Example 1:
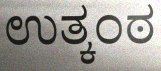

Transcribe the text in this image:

ಉತ್ಕಂಠ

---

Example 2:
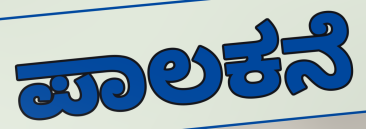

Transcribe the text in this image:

ಪಾಲಕನೆ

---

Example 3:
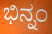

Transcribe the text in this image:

ಭಿನ್ನಂ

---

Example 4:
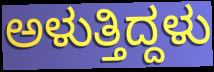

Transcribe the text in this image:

ಅಳುತ್ತಿದ್ದಳು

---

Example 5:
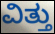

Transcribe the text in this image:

ವಿತ್ತು